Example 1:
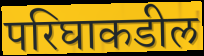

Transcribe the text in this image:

परिघाकडील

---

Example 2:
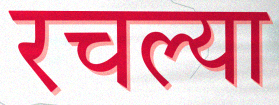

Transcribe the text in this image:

रचल्या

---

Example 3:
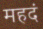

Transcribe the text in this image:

महदं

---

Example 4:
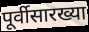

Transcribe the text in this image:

पूर्वीसारख्या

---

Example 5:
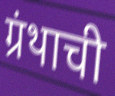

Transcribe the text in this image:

ग्रंथाची